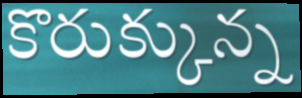
కొరుక్కున్న